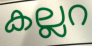
കല്ലറ